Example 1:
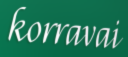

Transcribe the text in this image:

korravai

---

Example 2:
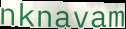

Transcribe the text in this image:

nknavam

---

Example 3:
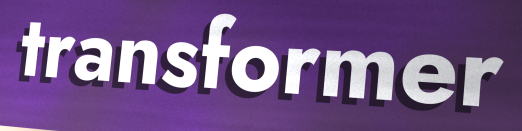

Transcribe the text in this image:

transformer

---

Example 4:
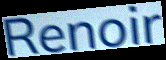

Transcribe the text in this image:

Renoir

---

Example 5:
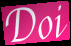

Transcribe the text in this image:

Doi